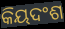
କିୟଦଂଶ